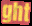
ght